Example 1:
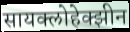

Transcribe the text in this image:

सायक्लोहेक्झीन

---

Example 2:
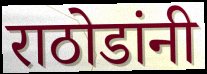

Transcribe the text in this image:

राठोडांनी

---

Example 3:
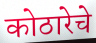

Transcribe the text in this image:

कोठारेचे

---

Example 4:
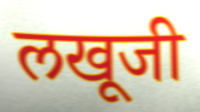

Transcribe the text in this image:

लखूजी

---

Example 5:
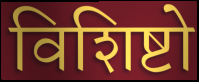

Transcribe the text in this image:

विशिष्टो